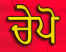
ਚੇਪੋ